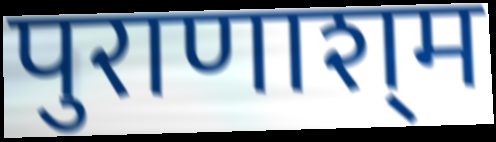
पुराणाश्म